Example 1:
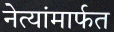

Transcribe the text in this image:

नेत्यांमार्फत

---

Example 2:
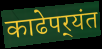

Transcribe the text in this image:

काढेपर्यंत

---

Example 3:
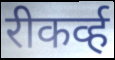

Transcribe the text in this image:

रीकर्व्ह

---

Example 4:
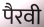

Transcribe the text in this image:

पैरवी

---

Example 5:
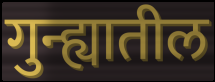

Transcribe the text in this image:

गुन्ह्यातील